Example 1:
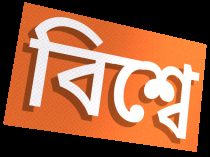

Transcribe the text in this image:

বিশ্বে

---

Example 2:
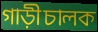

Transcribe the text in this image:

গাড়ীচালক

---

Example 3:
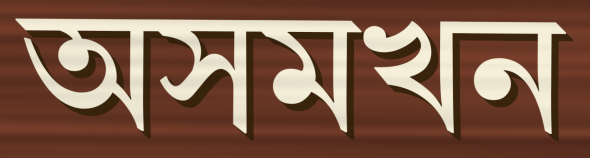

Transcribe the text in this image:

অসমখন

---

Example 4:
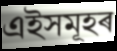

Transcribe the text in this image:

এইসমূহৰ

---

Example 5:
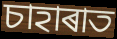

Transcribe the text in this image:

চাহাৰাত